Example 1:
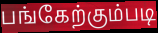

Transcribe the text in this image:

பங்கேற்கும்படி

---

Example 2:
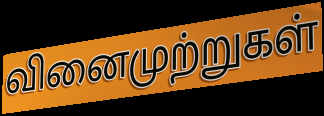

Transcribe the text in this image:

வினைமுற்றுகள்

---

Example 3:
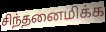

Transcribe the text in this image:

சிந்தனைமிக்க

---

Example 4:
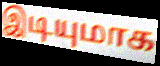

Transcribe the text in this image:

இடியுமாக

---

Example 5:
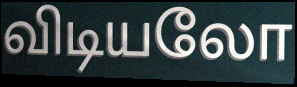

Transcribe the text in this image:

விடியலோ